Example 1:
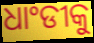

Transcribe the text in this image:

ଧାଂଡୀକୁ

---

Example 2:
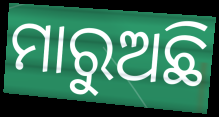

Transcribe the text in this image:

ମାରୁଅଛି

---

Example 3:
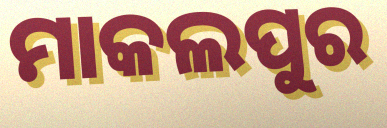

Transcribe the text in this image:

ମାକଲପୁର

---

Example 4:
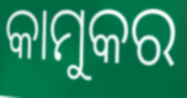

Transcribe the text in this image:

କାମୁକର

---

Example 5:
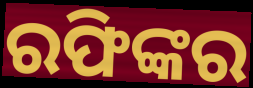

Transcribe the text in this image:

ରଫିଙ୍କର